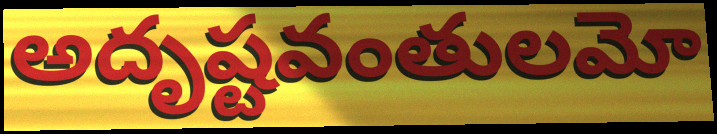
అదృష్టవంతులమో